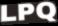
LPQ